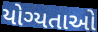
યોગ્યતાઓ